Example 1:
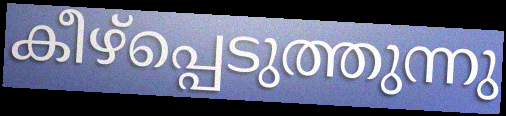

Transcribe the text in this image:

കീഴ്പ്പെടുത്തുന്നു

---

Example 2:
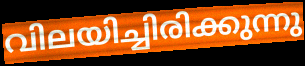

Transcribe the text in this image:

വിലയിച്ചിരിക്കുന്നു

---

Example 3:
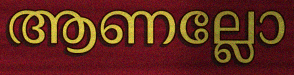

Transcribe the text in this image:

ആണല്ലോ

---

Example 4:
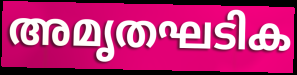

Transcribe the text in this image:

അമൃതഘടിക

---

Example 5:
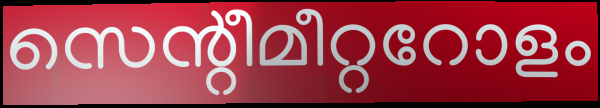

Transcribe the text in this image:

സെന്റീമീറ്ററോളം